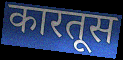
कारतूस